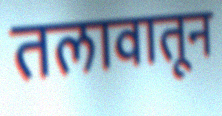
तलावातून